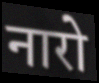
नारो